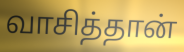
வாசித்தான்